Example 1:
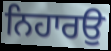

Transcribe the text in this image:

ਨਿਹਾਰਉ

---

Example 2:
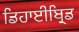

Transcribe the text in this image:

ਡਿਹਾਈਬ੍ਰਿਡ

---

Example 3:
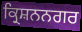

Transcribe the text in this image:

ਕ੍ਰਿਸ਼ਨਨਗਰ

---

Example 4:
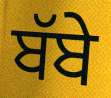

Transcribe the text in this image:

ਬੱਬੇ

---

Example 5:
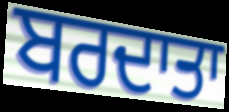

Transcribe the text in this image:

ਬਰਦਾਤਾ